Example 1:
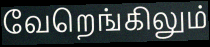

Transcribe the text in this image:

வேறெங்கிலும்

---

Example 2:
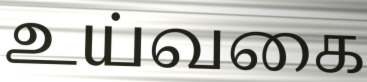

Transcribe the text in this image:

உய்வகை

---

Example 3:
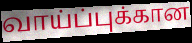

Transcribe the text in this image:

வாய்ப்புக்கான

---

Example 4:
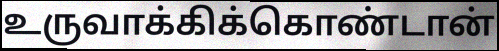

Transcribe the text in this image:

உருவாக்கிக்கொண்டான்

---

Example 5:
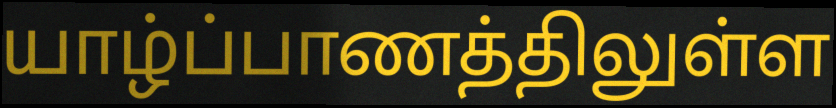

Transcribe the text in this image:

யாழ்ப்பாணத்திலுள்ள